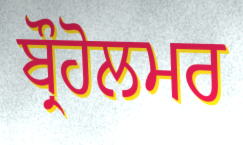
ਬ੍ਰੌਹੋਲਮਰ